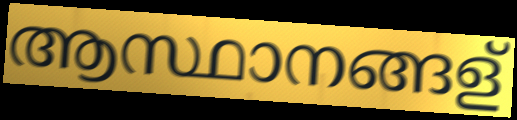
ആസ്ഥാനങ്ങള്